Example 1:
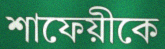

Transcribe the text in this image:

শাফেয়ীকে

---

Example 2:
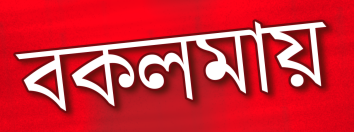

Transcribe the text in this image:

বকলমায়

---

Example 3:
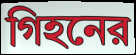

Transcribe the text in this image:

গিহনের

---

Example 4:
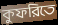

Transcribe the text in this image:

কুফরিতে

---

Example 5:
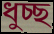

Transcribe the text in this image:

ধুচ্ছ